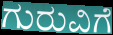
ಗುರುವಿಗೆ